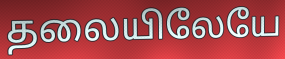
தலையிலேயே